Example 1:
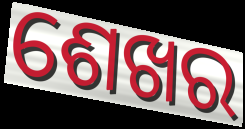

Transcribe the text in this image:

ଶେଖର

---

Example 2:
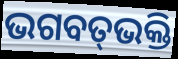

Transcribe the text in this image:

ଭଗବତ୍‌ଭକ୍ତି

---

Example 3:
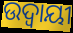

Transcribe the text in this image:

ଉଦ୍ବାୟୀ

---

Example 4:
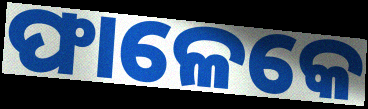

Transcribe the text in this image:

ଫାଳେକେ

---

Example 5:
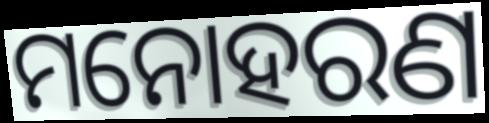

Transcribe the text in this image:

ମନୋହରଣ